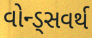
વોન્ડ્સવર્થ